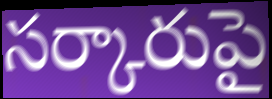
సర్కారుపై